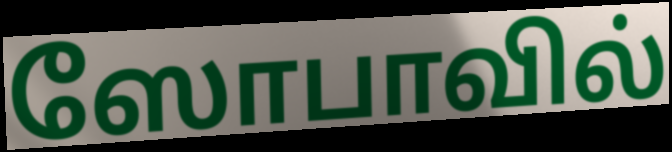
ஸோபாவில்